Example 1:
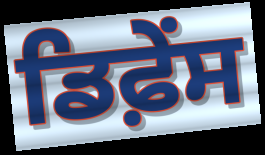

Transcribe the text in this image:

ਡਿਫ਼ੇਂਸ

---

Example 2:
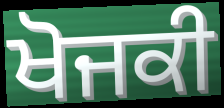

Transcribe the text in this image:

ਖੋਜਕੀ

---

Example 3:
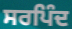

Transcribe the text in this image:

ਸਰਪਿੰਦ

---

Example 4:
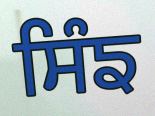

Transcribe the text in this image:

ਸਿੰਙ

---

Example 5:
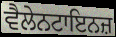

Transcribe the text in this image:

ਵੈਲੇਨਟਾਇਨਜ਼